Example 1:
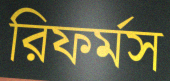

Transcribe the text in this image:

রিফর্মস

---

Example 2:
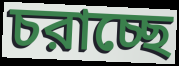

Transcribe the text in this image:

চরাচ্ছে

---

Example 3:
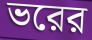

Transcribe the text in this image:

ভরের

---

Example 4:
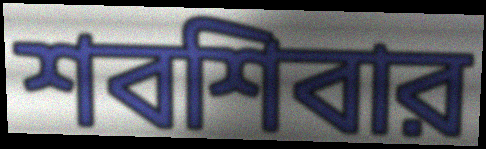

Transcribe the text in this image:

শবশিবার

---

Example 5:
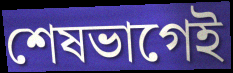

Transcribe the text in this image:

শেষভাগেই